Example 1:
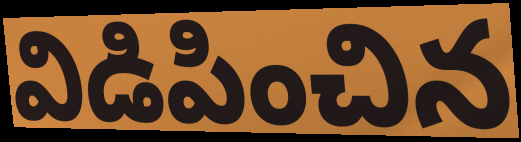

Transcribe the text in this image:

విడిపించిన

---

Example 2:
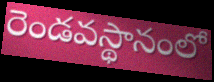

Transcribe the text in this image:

రెండవస్థానంలో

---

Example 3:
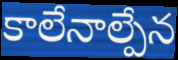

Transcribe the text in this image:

కాలేనాల్పేన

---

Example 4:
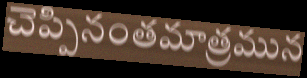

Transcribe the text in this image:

చెప్పినంతమాత్రమున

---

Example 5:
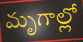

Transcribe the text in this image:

మృగాల్లో